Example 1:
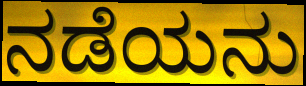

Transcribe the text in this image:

ನಡೆಯನು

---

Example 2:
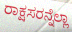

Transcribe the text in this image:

ರಾಕ್ಷಸರನ್ನೆಲ್ಲಾ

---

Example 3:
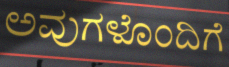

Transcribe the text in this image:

ಅವುಗಳೊಂದಿಗೆ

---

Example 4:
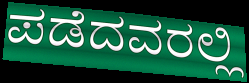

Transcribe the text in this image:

ಪಡೆದವರಲ್ಲಿ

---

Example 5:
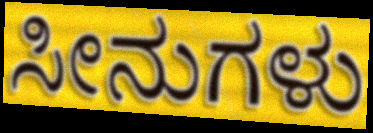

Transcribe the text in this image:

ಸೀನುಗಳು